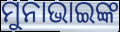
ମୁନାଭାଇଙ୍କ